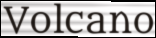
Volcano